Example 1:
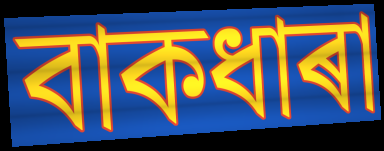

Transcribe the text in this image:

বাকধাৰা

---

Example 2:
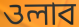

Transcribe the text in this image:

ওলাব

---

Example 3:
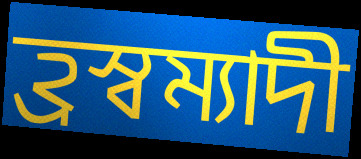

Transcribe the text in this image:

হ্ৰস্বম্যাদী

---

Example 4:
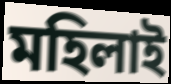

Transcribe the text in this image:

মহিলাই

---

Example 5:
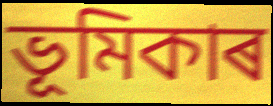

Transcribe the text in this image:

ভূমিকাৰ